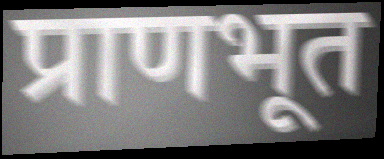
प्राणभूत